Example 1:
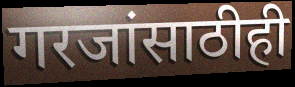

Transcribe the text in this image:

गरजांसाठीही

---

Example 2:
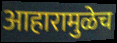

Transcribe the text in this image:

आहारामुळेच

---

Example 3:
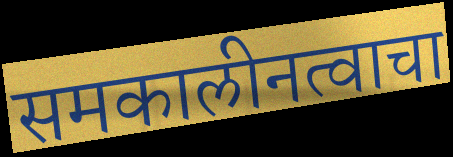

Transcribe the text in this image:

समकालीनत्वाचा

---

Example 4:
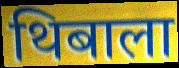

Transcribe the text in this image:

थिबाला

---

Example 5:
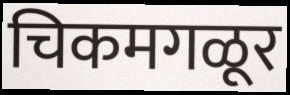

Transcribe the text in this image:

चिकमगळूर